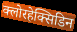
क्लोरहेक्सिडिन